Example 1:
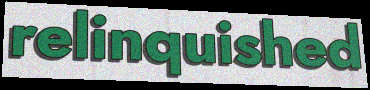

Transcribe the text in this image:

relinquished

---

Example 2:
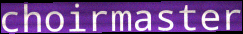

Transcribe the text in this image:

choirmaster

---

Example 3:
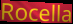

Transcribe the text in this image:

Rocella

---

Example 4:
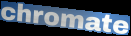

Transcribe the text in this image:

chromate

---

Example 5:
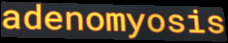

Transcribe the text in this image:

adenomyosis